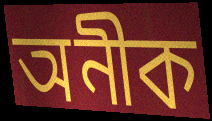
অনীক